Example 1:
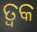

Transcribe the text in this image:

ତ୍ୱକ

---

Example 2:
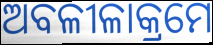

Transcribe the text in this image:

ଅବଳୀଳାକ୍ରମେ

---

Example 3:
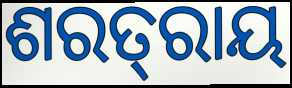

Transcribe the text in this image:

ଶରତ୍‌ରାୟ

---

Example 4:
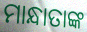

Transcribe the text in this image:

ମାନ୍ଧାତାଙ୍କ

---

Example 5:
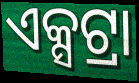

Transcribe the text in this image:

ଏକ୍ସଟ୍ରା